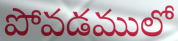
పోవడములో